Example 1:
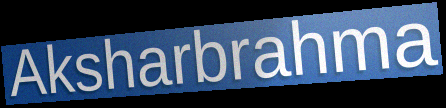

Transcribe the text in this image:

Aksharbrahma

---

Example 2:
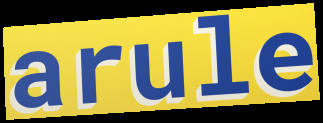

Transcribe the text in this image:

arule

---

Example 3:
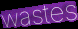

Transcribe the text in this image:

wastes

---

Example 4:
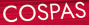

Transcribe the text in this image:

COSPAS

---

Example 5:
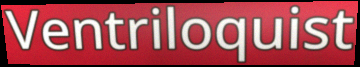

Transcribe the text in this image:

Ventriloquist